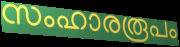
സംഹാരരൂപം